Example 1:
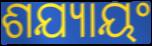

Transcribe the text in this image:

ଶଯ୍ୟାୟଂ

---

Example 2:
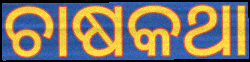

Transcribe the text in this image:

ଚାଷକଥା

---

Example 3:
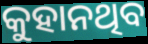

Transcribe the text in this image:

କୁହାନଥିବ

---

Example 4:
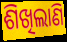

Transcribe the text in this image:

ଶିଖିଲାଣି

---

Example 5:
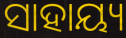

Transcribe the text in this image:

ସାହାୟ୍ୟ